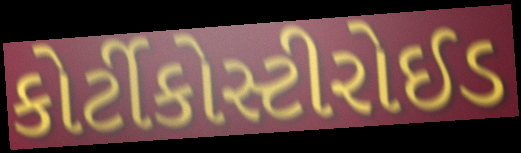
કોર્ટીકોસ્ટીરોઈડ